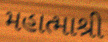
મહાત્માશ્રી